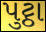
પુટ્ઠા